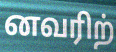
னவரிற்